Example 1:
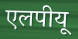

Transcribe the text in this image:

एलपीयू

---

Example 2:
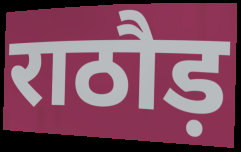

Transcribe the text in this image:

राठौड़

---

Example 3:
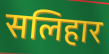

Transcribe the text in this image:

सलिहार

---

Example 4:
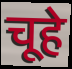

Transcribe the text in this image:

चूहे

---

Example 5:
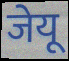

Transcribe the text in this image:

जेयू